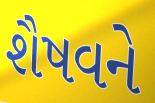
શૈષવને